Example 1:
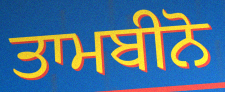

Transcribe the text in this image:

ਤਾਮਬੀਨੋ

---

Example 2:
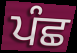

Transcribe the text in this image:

ਪੰਛ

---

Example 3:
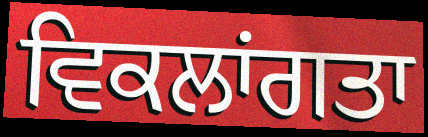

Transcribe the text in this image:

ਵਿਕਲਾਂਗਤਾ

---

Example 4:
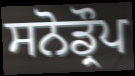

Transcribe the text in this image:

ਸਨੋਡ੍ਰੌਪ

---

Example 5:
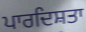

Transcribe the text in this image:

ਪਾਰਦਿਸ਼ਤਾ